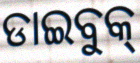
ଡାଇବୁକ୍